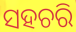
ସହଚରି